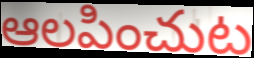
ఆలపించుట